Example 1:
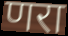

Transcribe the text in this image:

णरा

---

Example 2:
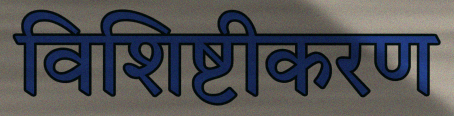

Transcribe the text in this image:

विशिष्टीकरण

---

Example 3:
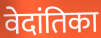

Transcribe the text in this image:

वेदांतिका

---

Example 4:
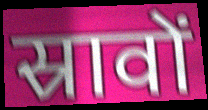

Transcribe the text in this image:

स्रावों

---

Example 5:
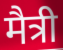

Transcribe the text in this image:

मैत्री